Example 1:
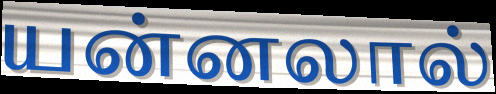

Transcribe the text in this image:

யன்னலால்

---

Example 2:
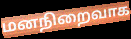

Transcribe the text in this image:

மனநிறைவாக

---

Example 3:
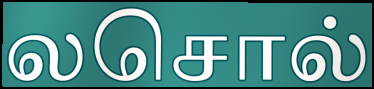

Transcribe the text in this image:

லசொல்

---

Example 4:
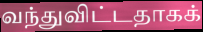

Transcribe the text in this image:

வந்துவிட்டதாகக்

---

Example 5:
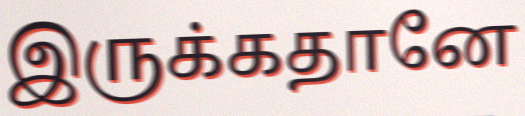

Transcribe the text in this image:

இருக்கதானே